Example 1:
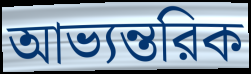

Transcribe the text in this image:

আভ্যন্তরিক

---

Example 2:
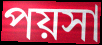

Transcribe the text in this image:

পয়সা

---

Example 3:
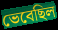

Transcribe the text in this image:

ভেবেছিল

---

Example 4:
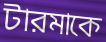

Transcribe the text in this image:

টারমাকে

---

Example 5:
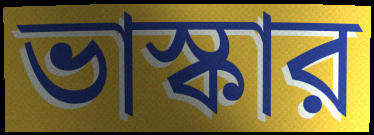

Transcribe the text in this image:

ভাস্কার